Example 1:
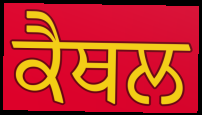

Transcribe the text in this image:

ਕੈਥਲ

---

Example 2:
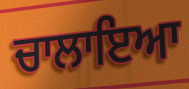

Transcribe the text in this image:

ਚਾਲਾਇਆ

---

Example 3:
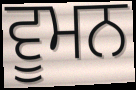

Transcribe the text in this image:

ਵੂਮਨ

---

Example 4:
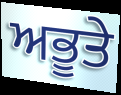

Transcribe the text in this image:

ਅਭੂਤੇ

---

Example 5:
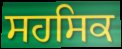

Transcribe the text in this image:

ਸਹਸਿਕ